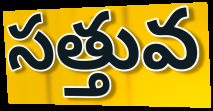
సత్తువ